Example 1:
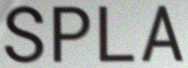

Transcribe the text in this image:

SPLA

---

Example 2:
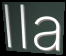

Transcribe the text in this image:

IIa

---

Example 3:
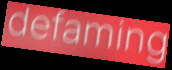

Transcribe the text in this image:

defaming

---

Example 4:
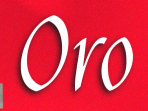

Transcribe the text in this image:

Oro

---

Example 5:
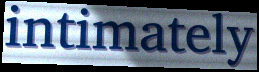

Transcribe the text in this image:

intimately